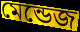
মেন্ডেজ